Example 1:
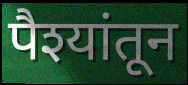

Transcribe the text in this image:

पैश्यांतून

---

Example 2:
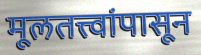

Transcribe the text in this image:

मूलतत्त्वांपासून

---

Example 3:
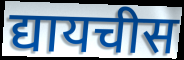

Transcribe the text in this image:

द्यायचीस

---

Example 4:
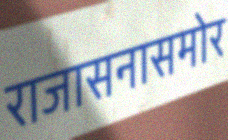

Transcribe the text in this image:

राजासनासमोर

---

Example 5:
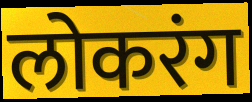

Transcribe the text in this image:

लोकरंग